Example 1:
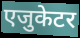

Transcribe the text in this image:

एजुकेटर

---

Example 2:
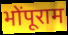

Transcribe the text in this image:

भोंपूराम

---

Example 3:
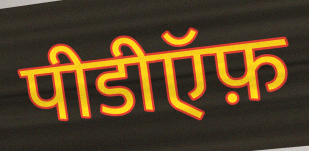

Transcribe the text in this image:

पीडीऍफ़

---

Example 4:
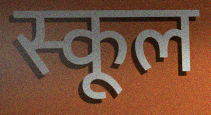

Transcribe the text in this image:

स्कूल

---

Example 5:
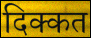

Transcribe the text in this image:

दिक्कत